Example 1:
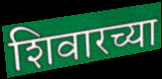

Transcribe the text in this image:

शिवारच्या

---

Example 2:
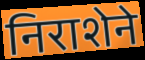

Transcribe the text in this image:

निराशेने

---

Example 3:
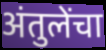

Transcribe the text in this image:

अंतुलेंचा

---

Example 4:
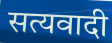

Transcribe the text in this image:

सत्यवादी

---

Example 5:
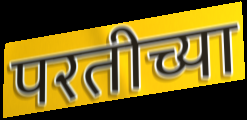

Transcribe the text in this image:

परतीच्या